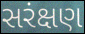
સરંક્ષણ